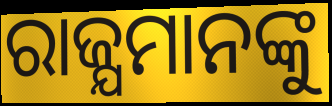
ରାଜ୍ଯମାନଙ୍କୁ